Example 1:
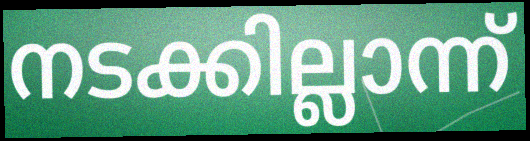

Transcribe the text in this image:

നടക്കില്ലാന്ന്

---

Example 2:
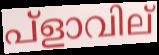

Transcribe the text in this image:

പ്ളാവില്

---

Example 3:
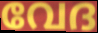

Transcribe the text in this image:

വേദ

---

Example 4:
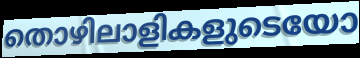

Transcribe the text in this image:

തൊഴിലാളികളുടെയോ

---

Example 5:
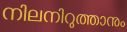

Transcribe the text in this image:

നിലനിറുത്താനും